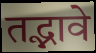
तद्भावे